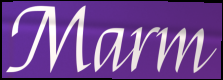
Marm